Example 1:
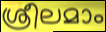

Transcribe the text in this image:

ശ്രീലമാം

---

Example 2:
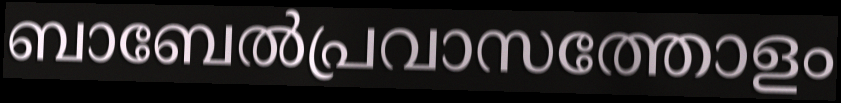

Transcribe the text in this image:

ബാബേൽപ്രവാസത്തോളം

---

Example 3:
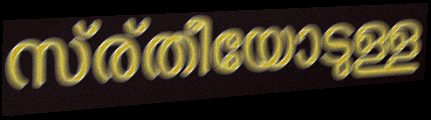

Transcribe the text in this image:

സ്ര്തീയോടുള്ള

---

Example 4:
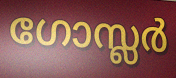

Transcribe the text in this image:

ഗോസ്ലർ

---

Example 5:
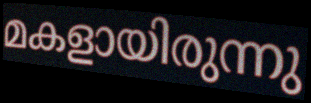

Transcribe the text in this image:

മകളായിരുന്നു